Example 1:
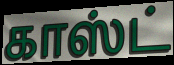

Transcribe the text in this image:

காஸ்ட்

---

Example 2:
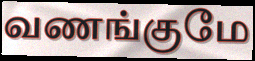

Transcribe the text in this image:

வணங்குமே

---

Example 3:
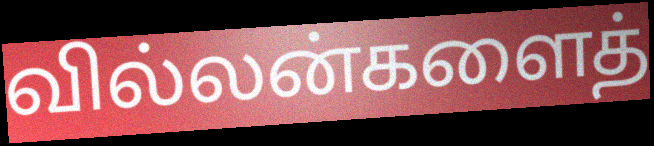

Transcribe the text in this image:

வில்லன்களைத்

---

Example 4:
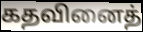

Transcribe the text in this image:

கதவினைத்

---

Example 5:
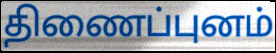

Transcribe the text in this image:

திணைப்புனம்